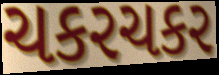
ચકરચકર